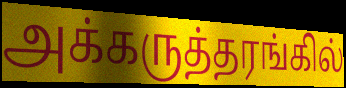
அக்கருத்தரங்கில்